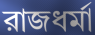
রাজধর্মা